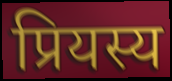
प्रियस्य